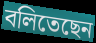
বলিতেছেন